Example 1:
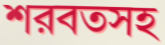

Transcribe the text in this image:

শরবতসহ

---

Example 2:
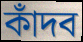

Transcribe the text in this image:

কাঁদব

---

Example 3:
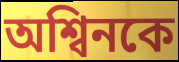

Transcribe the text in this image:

অশ্বিনকে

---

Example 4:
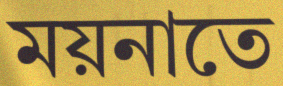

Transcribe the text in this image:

ময়নাতে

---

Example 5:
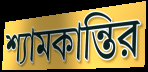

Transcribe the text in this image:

শ্যামকান্তির